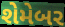
શેમેબર